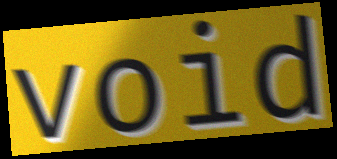
void